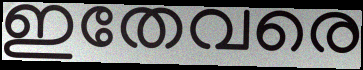
ഇതേവരെ